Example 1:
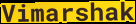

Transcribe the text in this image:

Vimarshak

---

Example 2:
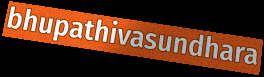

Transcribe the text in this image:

bhupathivasundhara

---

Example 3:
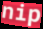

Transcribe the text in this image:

nip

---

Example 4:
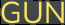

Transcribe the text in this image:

GUN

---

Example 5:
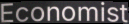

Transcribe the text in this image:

Economist